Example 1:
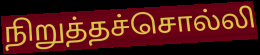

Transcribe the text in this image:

நிறுத்தச்சொல்லி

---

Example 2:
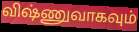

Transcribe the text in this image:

விஷ்ணுவாகவும்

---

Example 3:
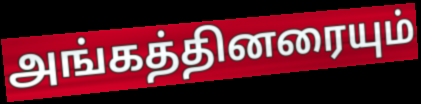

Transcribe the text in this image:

அங்கத்தினரையும்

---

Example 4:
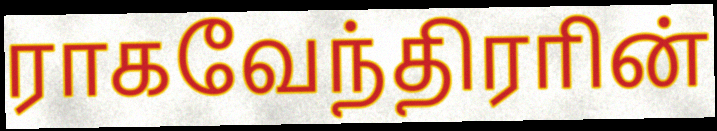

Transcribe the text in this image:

ராகவேந்திரரின்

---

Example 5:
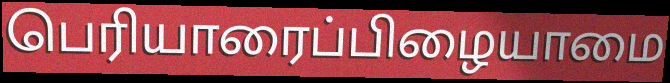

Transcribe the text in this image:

பெரியாரைப்பிழையாமை